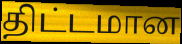
திட்டமான